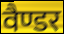
वैण्डर